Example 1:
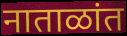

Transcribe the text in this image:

नाताळांत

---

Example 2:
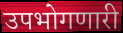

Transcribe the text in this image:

उपभोगणारी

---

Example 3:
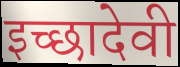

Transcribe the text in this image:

इच्छादेवी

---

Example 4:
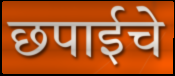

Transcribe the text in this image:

छपाईचे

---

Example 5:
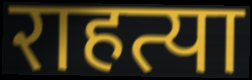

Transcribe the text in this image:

राहत्या